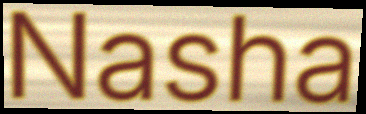
Nasha